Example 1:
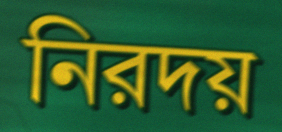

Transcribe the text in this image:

নিরদয়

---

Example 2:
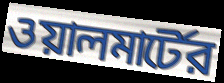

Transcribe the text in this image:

ওয়ালমার্টের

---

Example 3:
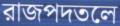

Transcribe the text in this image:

রাজপদতলে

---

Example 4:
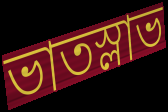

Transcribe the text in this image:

ভাতস্লাভ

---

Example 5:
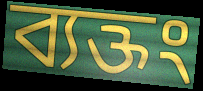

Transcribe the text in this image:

ব্যক্তং